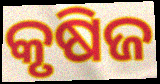
କୃଷିଜ